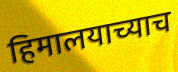
हिमालयाच्याच